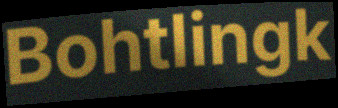
Bohtlingk